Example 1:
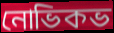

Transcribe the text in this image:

নোভিকভ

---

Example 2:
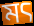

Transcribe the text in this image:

মৎ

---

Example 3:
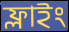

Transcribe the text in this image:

ফ্লাইং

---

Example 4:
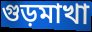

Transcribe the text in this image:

গুড়মাখা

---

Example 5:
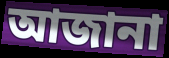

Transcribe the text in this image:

আজানা